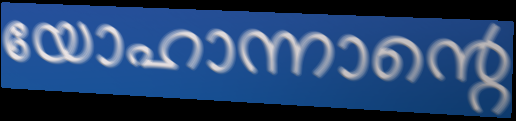
യോഹാന്നാന്റെ